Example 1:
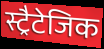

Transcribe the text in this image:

स्ट्रैटेजिक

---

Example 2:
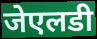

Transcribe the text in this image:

जेएलडी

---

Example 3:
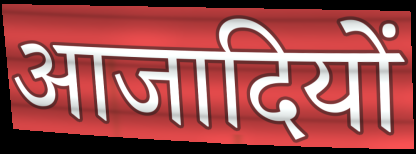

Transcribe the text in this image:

आजादियों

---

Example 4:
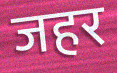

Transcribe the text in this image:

जहर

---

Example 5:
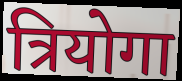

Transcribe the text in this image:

त्रियोगा